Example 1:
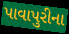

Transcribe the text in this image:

પાવાપુરીના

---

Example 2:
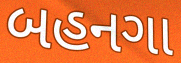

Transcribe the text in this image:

બહનગા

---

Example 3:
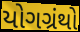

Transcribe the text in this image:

યોગગ્રંથો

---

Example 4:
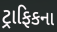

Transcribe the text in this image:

ટ્રાફિકના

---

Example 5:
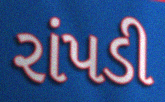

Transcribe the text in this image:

રાંપડી